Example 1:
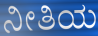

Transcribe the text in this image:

ನೀತಿಯ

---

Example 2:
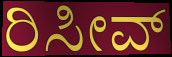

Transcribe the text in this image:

ರಿಸೀವ್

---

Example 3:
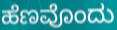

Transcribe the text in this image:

ಹೆಣವೊಂದು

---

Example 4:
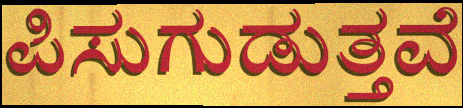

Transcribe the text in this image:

ಪಿಸುಗುಡುತ್ತವೆ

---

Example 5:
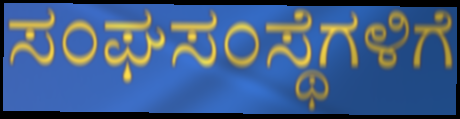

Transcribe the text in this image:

ಸಂಘಸಂಸ್ಥೆಗಳಿಗೆ